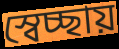
স্বেচ্ছায়